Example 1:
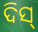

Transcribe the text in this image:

ଦିସ୍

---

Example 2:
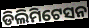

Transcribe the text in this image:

ଡିଲିମିଟେସନ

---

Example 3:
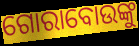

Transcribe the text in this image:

ଗୋରାବୋଉଙ୍କୁ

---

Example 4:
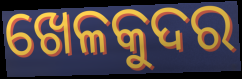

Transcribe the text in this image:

ଖେଳକୁଦର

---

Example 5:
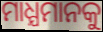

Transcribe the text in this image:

ମାଧ୍ଯମାନକୁ